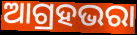
ଆଗ୍ରହଭରା